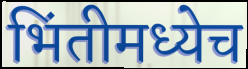
भिंतीमध्येच